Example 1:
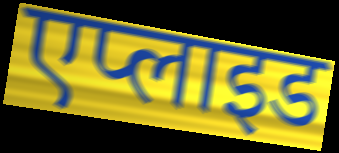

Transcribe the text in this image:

एप्लाइड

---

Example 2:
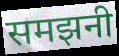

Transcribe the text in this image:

समझनी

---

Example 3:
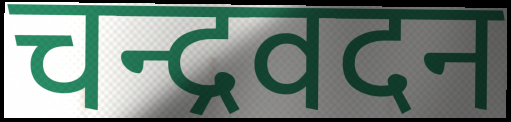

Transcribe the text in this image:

चन्द्रवदन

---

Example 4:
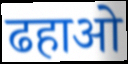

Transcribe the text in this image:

ढहाओ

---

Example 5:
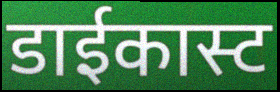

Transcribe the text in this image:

डाईकास्ट